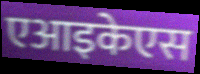
एआइकेएस